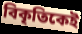
বিকৃতিকেই